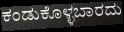
ಕಂಡುಕೊಳ್ಳಬಾರದು